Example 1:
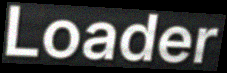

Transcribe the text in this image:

Loader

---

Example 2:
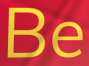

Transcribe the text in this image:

Be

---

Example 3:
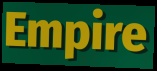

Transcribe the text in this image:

Empire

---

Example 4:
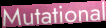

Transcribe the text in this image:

Mutational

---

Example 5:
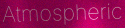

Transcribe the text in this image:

Atmospheric